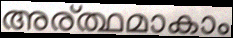
അര്ത്ഥമാകാം